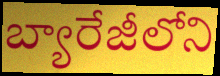
బ్యారేజీలోని